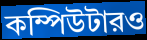
কম্পিউটারও